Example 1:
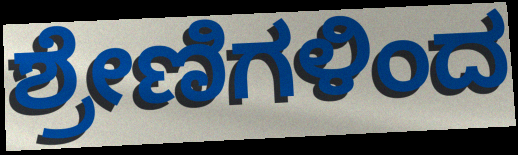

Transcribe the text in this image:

ಶ್ರೇಣಿಗಳಿಂದ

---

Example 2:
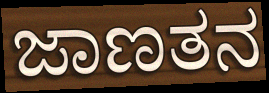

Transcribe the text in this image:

ಜಾಣತನ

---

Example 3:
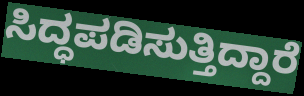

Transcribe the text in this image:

ಸಿದ್ಧಪಡಿಸುತ್ತಿದ್ದಾರೆ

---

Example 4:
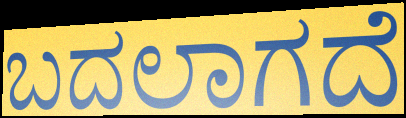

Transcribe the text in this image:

ಬದಲಾಗದೆ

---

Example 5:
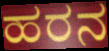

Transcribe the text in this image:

ಹರನ